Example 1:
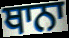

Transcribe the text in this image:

ਥਾਨਾ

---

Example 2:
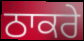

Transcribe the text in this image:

ਠਾਕਰੇ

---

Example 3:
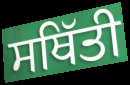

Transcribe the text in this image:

ਸਥਿੱਤੀ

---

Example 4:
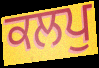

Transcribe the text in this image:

ਕਲਪੁ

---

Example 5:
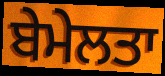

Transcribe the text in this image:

ਬੇਮੇਲਤਾ